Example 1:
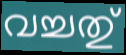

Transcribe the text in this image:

വച്ചതു്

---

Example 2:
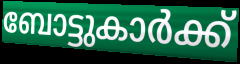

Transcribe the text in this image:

ബോട്ടുകാർക്ക്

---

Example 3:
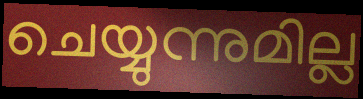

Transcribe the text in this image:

ചെയ്യുന്നുമില്ല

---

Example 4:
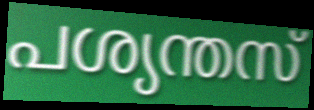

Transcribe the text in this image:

പശ്യന്തസ്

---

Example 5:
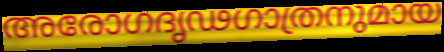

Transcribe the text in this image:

അരോഗദൃഢഗാത്രനുമായ